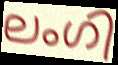
ലംഗി